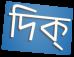
দিক্